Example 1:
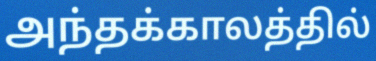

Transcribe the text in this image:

அந்தக்காலத்தில்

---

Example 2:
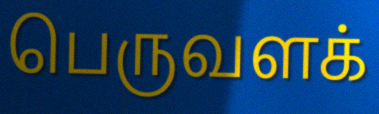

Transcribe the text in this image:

பெருவளக்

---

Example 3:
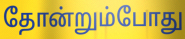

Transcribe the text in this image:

தோன்றும்போது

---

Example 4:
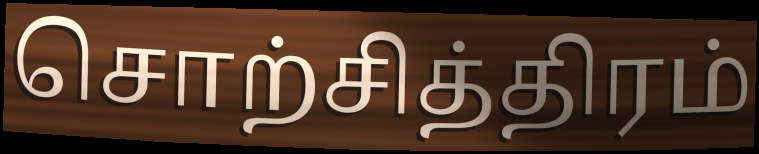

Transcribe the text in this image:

சொற்சித்திரம்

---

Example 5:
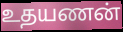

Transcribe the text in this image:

உதயணன்